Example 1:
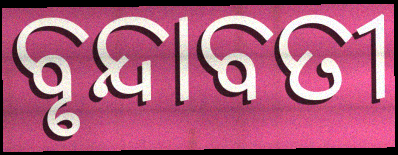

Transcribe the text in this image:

ବୃନ୍ଦାବତୀ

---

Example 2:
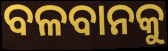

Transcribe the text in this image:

ବଳବାନକୁ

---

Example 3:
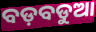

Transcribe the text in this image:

ବଡ଼ବଡୁଆ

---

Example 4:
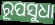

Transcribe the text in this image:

ରୂପସୁଧା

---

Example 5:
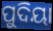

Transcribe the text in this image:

ପୁଦିୟା